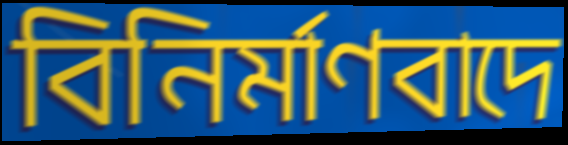
বিনিৰ্মাণবাদে